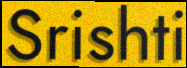
Srishti